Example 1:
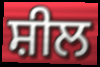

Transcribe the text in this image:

ਸ਼ੀਲ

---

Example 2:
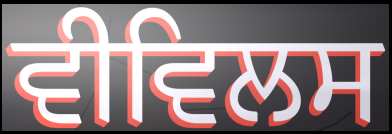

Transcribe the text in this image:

ਵੀਵਿਲਸ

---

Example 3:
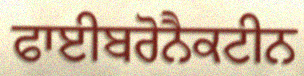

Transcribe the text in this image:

ਫਾਈਬਰੋਨੈਕਟੀਨ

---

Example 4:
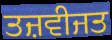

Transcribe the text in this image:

ਤਜ਼ਵੀਜਤ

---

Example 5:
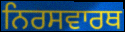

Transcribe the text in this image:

ਨਿਰਸਵਾਰਥ